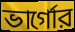
ভার্গোর